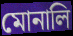
মোনালি